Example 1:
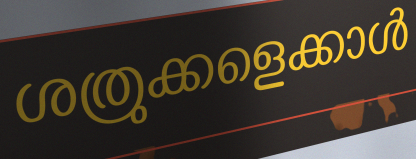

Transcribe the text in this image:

ശത്രുക്കളെക്കാൾ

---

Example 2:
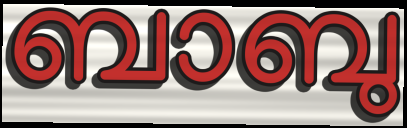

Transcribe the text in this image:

ബാബു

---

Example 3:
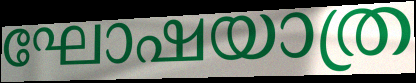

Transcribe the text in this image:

ഘോഷയാത്ര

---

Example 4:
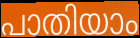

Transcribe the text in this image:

പാതിയാം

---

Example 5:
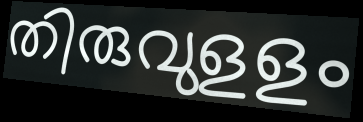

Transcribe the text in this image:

തിരുവുളളം